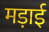
मड़ाई